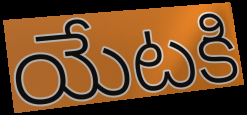
యేటకి